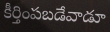
కీర్తింపబడేవాడూ